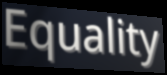
Equality